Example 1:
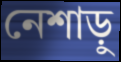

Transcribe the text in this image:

নেশাড়ু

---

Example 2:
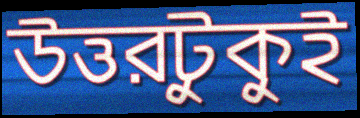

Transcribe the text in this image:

উত্তরটুকুই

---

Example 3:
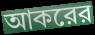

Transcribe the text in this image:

আকরের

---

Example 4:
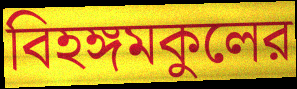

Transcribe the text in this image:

বিহঙ্গমকুলের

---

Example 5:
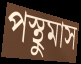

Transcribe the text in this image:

পস্থুমাস